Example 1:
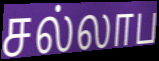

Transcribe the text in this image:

சல்லாப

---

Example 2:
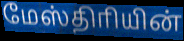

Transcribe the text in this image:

மேஸ்திரியின்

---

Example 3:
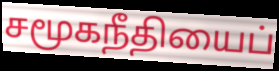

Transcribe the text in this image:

சமூகநீதியைப்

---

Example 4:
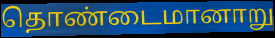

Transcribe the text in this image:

தொண்டைமானாறு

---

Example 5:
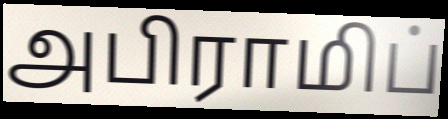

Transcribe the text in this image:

அபிராமிப்